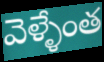
వెళ్ళేంత